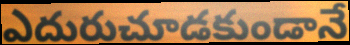
ఎదురుచూడకుండానే